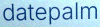
datepalm